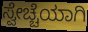
ಸ್ವೇಚ್ಚೆಯಾಗಿ